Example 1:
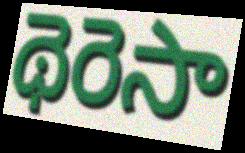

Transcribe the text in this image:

థెరెసా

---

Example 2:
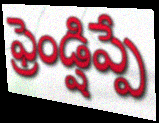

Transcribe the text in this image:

ఫ్రెండ్షిప్పే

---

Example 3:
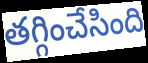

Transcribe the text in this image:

తగ్గించేసింది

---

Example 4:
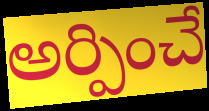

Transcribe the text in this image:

అర్పించే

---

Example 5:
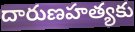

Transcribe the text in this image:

దారుణహత్యకు